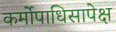
कर्मोपाधिसापेक्ष